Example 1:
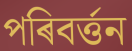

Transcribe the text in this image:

পৰিবৰ্ত্তন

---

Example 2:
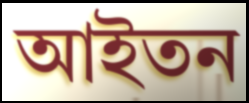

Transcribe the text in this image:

আইতন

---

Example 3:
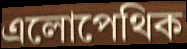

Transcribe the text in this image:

এলোপেথিক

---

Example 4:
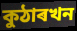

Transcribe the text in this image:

কুঠাৰখন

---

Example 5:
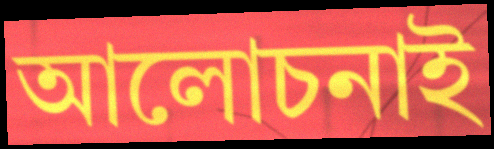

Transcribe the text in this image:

আলোচনাই